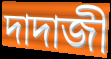
দাদাজী